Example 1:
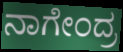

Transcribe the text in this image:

ನಾಗೇಂದ್ರ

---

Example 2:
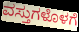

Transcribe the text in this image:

ವಸ್ತುಗಳೊಳಗೆ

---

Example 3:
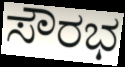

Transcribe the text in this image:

ಸೌರಭ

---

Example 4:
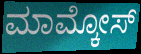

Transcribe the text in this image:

ಮಾಮ್ಕೋಸ್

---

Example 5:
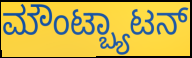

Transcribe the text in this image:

ಮೌಂಟ್ಬ್ಯಾಟನ್